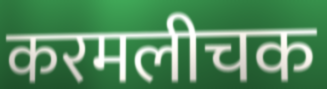
करमलीचक